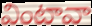
వింటావా